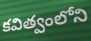
కవిత్వంలోని